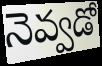
నెవ్వడో